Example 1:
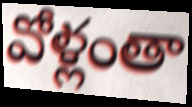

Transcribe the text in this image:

వోళ్లంతా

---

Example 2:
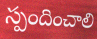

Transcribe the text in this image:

స్పందించాలి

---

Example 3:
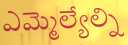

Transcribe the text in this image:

ఎమ్మెల్యేల్ని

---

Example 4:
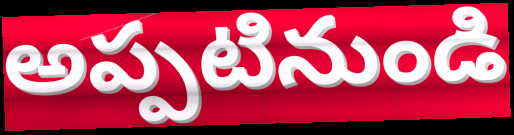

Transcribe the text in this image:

అప్పటినుండి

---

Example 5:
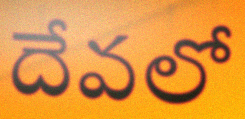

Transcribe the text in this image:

దేవలో